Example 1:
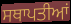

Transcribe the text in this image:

ਸਥਾਪਤੀਆਂ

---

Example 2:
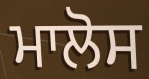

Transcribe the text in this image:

ਮਾਲੋਸ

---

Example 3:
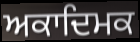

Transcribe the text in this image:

ਅਕਾਦਿਮਕ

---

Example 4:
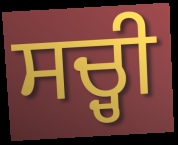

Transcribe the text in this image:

ਸਚ੍ਚੀ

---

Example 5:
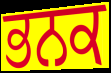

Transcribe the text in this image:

ਭਨਕ